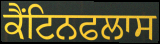
ਕੈਂਟਿਨਫਲਾਸ